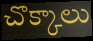
చొక్కాలు